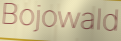
Bojowald